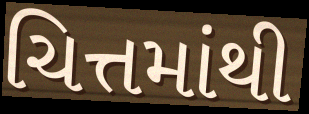
ચિત્તમાંથી